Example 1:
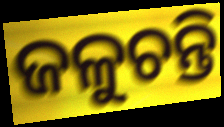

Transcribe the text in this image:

ଜଳୁଚନ୍ତି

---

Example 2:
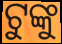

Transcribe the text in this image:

ଟୁଙ୍କୁ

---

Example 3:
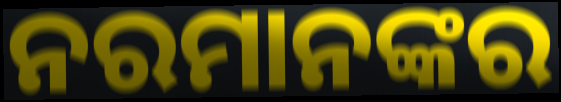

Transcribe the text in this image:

ନରମାନଙ୍କର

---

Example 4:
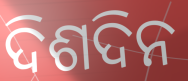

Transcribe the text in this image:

ଦିଶଦିନ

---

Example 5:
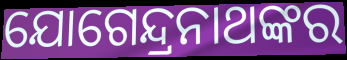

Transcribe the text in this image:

ଯୋଗେନ୍ଦ୍ରନାଥଙ୍କର